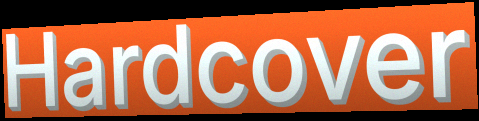
Hardcover